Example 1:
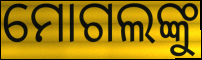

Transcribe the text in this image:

ମୋଗଲଙ୍କୁ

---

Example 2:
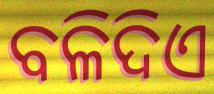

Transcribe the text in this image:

ବଳିଦିଏ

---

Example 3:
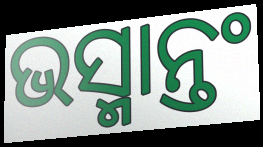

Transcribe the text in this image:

ଭସ୍ମାନ୍ତଂ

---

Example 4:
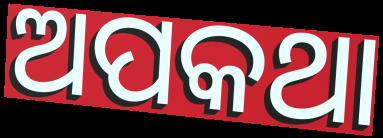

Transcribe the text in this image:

ଅପକଥା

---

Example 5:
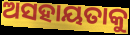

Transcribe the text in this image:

ଅସହାୟତାକୁ